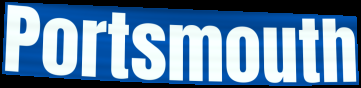
Portsmouth